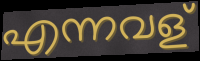
എന്നവള്